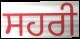
ਸਹਰੀ